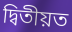
দ্বিতীয়ত